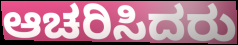
ಆಚರಿಸಿದರು